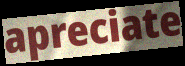
apreciate